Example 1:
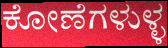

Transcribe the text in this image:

ಕೋಣೆಗಳುಳ್ಳ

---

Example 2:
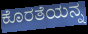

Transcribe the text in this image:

ಕೊರತೆಯನ್ನ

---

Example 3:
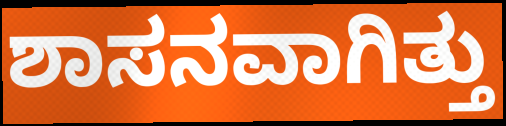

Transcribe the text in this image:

ಶಾಸನವಾಗಿತ್ತು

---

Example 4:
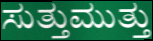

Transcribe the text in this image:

ಸುತ್ತುಮುತ್ತು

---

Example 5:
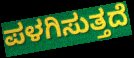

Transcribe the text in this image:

ಪಳಗಿಸುತ್ತದೆ